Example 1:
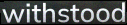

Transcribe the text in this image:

withstood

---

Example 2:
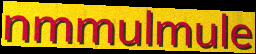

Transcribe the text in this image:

nmmulmule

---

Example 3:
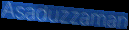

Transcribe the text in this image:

Asaduzzaman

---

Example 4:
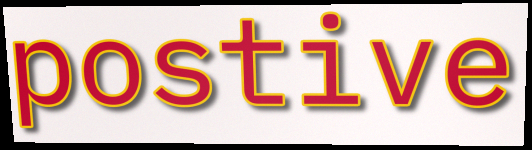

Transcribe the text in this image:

postive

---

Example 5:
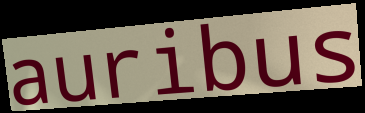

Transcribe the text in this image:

auribus